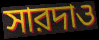
সারদাও